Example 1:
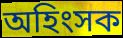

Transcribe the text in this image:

অহিংসক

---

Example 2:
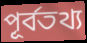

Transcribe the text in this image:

পূর্বতথ্য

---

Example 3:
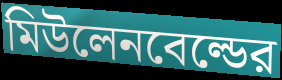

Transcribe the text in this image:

মিউলেনবেল্ডের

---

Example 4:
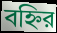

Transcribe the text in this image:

বহ্নির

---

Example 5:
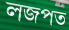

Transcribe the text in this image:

লজপত